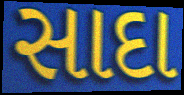
સાદા